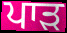
ਪਾੜ